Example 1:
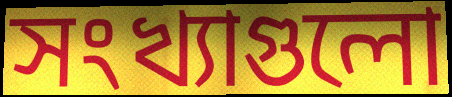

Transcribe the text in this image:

সংখ্যাগুলো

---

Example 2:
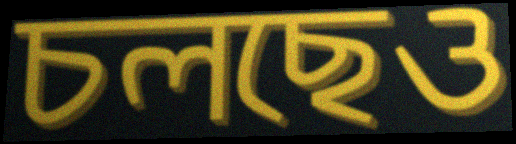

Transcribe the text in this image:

চলছেও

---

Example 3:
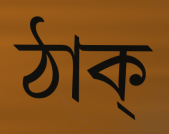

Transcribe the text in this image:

ঠাক্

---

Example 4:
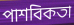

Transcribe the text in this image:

পাশবিকতা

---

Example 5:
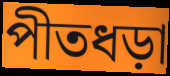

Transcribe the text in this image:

পীতধড়া